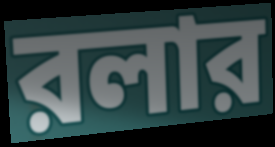
রলার